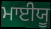
ਮਾਈਯੂ